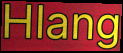
Hlang